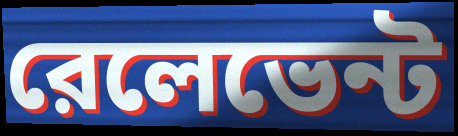
রেলেভেন্ট